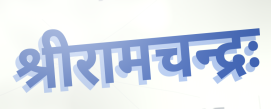
श्रीरामचन्द्रः